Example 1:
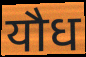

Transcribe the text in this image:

यौध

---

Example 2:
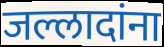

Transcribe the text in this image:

जल्लादांना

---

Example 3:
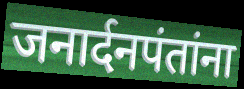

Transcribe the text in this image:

जनार्दनपंतांना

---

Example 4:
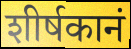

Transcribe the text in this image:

शीर्षकानं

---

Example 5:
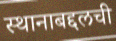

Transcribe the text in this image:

स्थानाबद्दलची